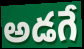
అడగే